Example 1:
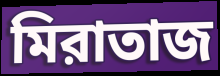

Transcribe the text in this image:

মিরাতাজ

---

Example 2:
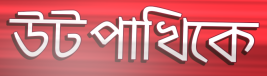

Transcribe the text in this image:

উটপাখিকে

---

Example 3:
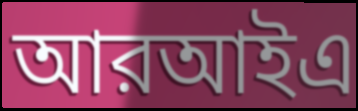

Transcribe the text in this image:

আরআইএ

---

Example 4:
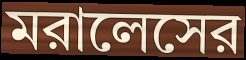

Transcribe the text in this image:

মরালেসের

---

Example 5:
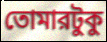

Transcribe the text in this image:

তোমারটুকু